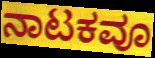
ನಾಟಕವೂ